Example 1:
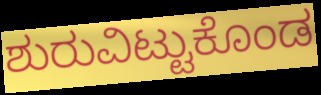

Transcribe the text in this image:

ಶುರುವಿಟ್ಟುಕೊಂಡ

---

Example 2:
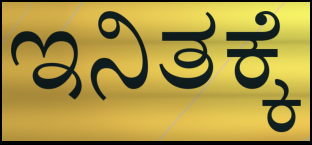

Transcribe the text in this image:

ಇನಿತಕ್ಕೆ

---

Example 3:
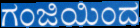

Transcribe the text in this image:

ಗಂಜಿಯಿಂದ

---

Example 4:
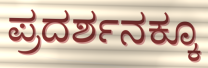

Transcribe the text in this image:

ಪ್ರದರ್ಶನಕ್ಕೂ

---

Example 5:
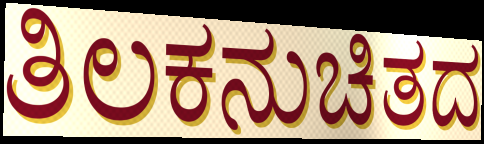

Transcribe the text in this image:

ತಿಲಕನುಚಿತದ